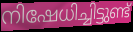
നിഷേധിച്ചിട്ടുണ്ട്